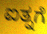
ಐತ್ನಗೆ